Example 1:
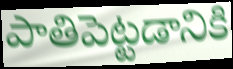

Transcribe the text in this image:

పాతిపెట్టడానికి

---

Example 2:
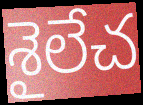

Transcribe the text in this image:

శైలేచ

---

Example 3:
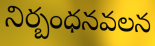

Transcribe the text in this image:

నిర్బంధనవలన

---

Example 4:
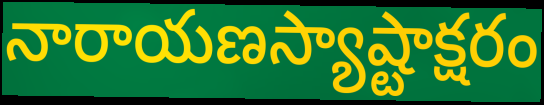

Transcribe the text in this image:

నారాయణస్యాష్టాక్షరం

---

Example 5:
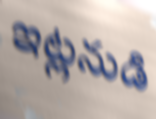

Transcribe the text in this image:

ఇట్లనుడి